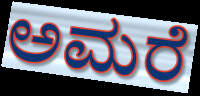
ಅಮರೆ